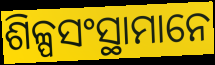
ଶିଳ୍ପସଂସ୍ଥାମାନେ